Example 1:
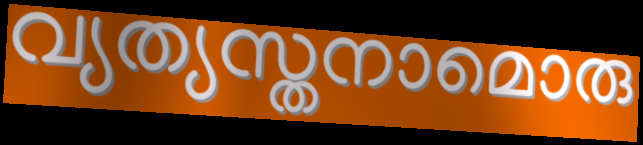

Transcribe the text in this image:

വ്യത്യസ്തനാമൊരു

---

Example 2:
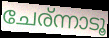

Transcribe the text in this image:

ചേര്ന്നാടൂ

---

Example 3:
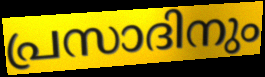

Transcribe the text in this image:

പ്രസാദിനും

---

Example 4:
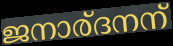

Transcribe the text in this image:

ജനാര്ദനന്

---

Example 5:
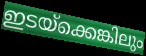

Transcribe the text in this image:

ഇടയ്ക്കെങ്കിലും